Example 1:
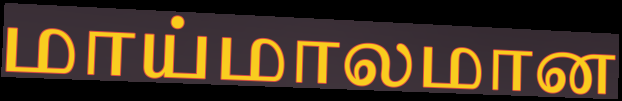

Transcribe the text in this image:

மாய்மாலமான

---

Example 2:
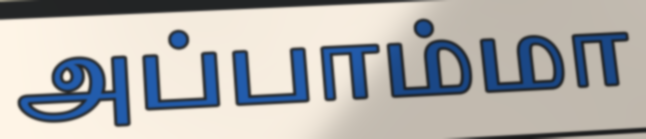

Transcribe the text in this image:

அப்பாம்மா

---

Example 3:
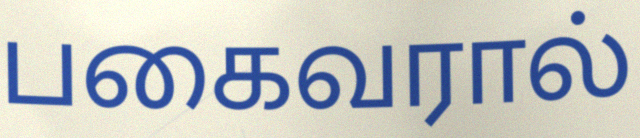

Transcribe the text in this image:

பகைவரால்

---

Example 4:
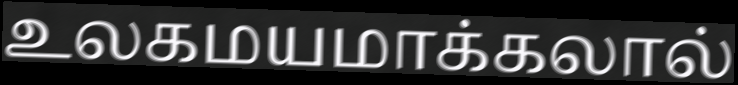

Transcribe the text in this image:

உலகமயமாக்கலால்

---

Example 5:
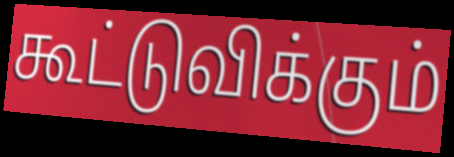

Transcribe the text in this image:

கூட்டுவிக்கும்